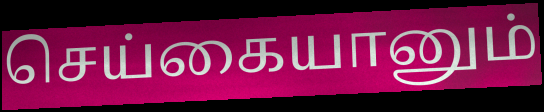
செய்கையானும்